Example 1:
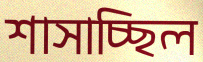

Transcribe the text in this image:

শাসাচ্ছিল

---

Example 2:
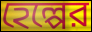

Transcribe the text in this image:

হেল্পের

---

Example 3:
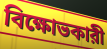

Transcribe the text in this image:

বিক্ষোভকারী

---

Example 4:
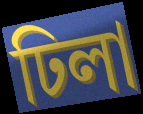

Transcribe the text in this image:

ঢিলা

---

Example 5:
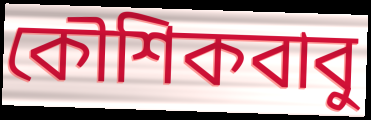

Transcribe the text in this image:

কৌশিকবাবু